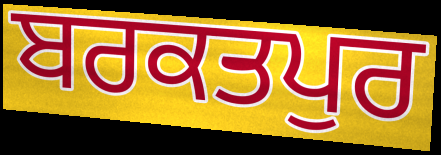
ਬਰਕਤਪੁਰ